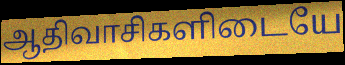
ஆதிவாசிகளிடையே